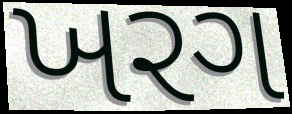
ખરગ